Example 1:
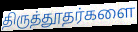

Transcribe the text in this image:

திருத்தூதர்களை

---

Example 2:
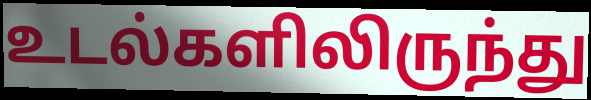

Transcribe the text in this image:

உடல்களிலிருந்து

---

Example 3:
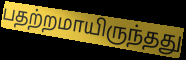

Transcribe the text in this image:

பதற்றமாயிருந்தது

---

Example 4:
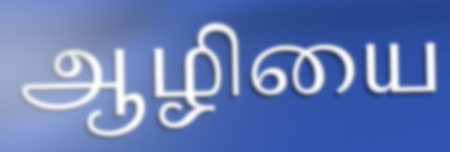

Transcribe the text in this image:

ஆழியை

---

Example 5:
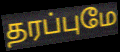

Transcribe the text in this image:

தரப்புமே